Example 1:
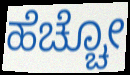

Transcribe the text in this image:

ಹೆಚ್ಚೋ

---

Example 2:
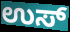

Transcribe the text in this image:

ಉಸ್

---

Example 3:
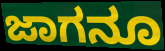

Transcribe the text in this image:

ಜಾಗನೂ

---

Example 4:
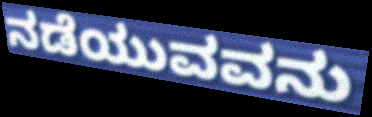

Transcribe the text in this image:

ನಡೆಯುವವನು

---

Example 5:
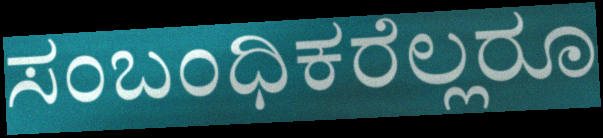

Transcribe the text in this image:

ಸಂಬಂಧಿಕರೆಲ್ಲರೂ